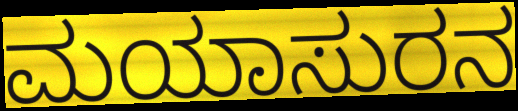
ಮಯಾಸುರನ